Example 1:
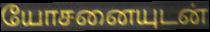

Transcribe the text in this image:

யோசனையுடன்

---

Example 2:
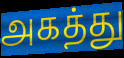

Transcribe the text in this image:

அகத்து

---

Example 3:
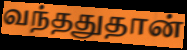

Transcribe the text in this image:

வந்ததுதான்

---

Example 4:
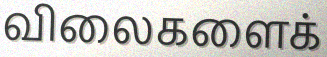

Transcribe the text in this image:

விலைகளைக்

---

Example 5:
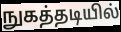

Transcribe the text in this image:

நுகத்தடியில்